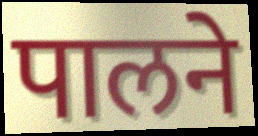
पालने